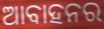
ଆବାହନର